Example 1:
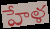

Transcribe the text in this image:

హేళ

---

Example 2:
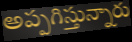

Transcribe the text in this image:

అప్పగిస్తున్నారు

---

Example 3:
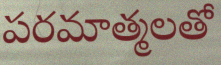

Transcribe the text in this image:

పరమాత్మలతో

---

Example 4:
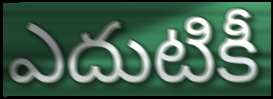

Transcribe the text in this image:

ఎదుటికీ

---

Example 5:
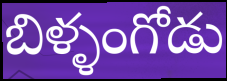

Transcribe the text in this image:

బిళ్ళంగోడు